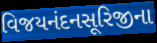
વિજયનંદનસૂરિજીના